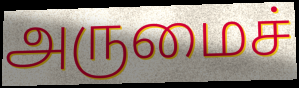
அருமைச்